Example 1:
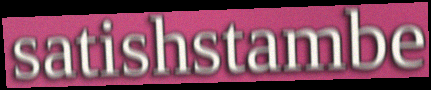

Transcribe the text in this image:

satishstambe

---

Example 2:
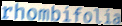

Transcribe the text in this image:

rhombifolia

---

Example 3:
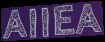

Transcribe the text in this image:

AIIEA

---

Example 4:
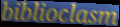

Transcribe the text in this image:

biblioclasm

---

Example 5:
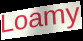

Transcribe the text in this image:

Loamy